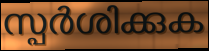
സ്പർശിക്കുക